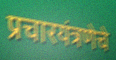
प्रचारयंत्रणेचे